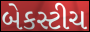
બેકસ્ટીચ